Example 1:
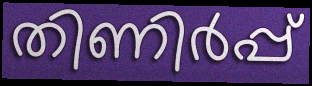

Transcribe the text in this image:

തിണിർപ്പ്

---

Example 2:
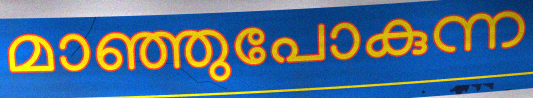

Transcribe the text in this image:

മാഞ്ഞുപോകുന്ന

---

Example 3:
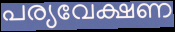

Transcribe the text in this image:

പര്യവേക്ഷണ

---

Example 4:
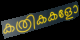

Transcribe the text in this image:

കത്രികകളോ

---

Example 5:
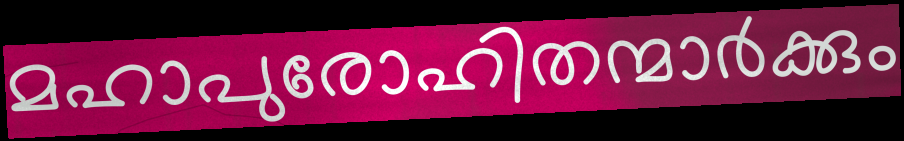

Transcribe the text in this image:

മഹാപുരോഹിതന്മാർക്കും